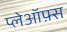
प्लेऑफ़्स